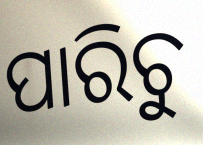
ପାରିଚୁ